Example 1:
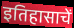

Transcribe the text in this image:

इतिहासाचें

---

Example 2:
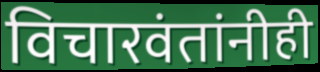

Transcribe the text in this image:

विचारवंतांनीही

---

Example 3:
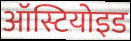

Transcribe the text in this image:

ऑस्टियोइड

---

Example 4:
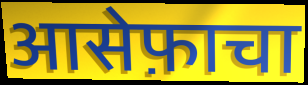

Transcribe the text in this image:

आसेफ़ाचा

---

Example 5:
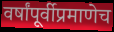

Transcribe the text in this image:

वर्षांपूर्वीप्रमाणेच